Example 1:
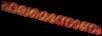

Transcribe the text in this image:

ഫലമെന്നോണം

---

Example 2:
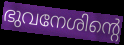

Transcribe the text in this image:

ഭുവനേശിന്റെ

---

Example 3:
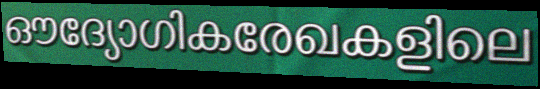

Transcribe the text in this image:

ഔദ്യോഗികരേഖകളിലെ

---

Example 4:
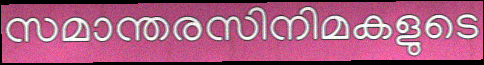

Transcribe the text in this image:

സമാന്തരസിനിമകളുടെ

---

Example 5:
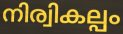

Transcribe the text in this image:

നിര്വികല്പം